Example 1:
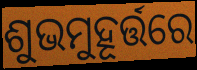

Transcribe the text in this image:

ଶୁଭମୁହୂର୍ତ୍ତରେ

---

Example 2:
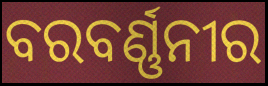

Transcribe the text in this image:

ବରବର୍ଣ୍ଣନୀର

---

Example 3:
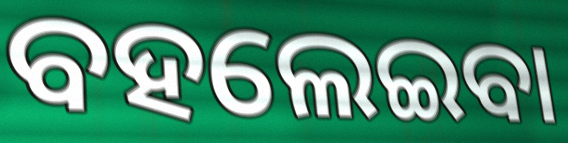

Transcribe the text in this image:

ବହଲେଇବା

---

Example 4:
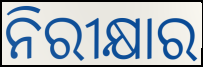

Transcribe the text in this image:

ନିରୀକ୍ଷାର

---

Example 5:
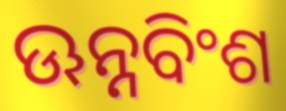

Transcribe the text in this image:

ଊନ୍ନବିଂଶ